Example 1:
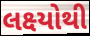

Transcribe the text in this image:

લક્ષ્યોથી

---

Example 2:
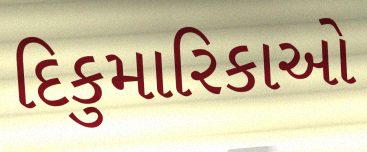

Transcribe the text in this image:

દિકુમારિકાઓ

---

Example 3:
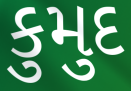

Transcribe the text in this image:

કુમુદ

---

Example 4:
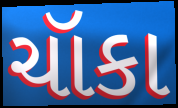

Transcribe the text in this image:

ચૉકા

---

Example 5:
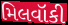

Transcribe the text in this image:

મિલવૉકી